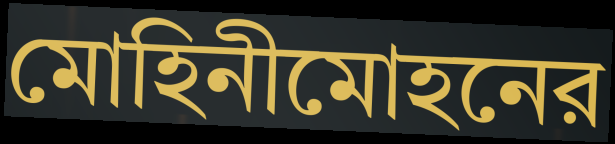
মোহিনীমোহনের